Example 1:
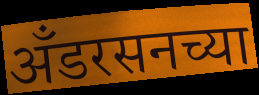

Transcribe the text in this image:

अँडरसनच्या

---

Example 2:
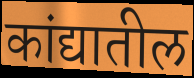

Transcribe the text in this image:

कांद्यातील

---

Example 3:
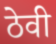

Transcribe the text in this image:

ठेवी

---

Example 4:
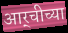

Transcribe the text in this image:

आर्चीच्या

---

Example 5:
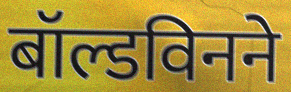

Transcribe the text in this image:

बॉल्डविनने